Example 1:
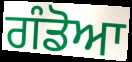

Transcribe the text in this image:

ਗੰਡੋਆ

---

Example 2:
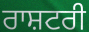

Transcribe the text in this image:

ਰਾਸ਼ਟਰੀ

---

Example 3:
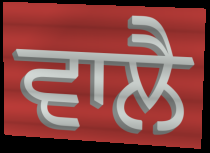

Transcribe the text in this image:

ਵਾਲੈ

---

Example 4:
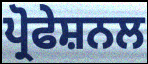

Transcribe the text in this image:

ਪ੍ਰੋਫੇਸ਼ਨਲ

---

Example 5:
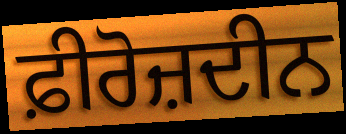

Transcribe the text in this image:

ਫ਼ੀਰੋਜ਼ਦੀਨ